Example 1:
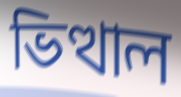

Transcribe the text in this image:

ভিত্থাল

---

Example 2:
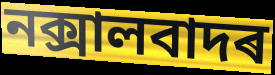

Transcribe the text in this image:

নক্সালবাদৰ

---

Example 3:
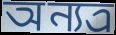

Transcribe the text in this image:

অন্যত্ৰ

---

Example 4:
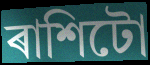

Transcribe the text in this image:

ৰাশিটো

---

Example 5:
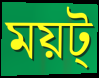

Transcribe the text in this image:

ময়ট্